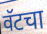
वॅटचा